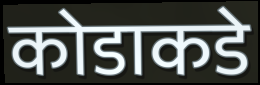
कोडाकडे